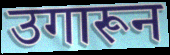
उगारून